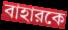
বাহারকে